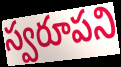
స్వరూపని